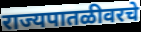
राज्यपातळीवरचे